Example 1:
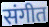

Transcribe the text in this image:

संगीत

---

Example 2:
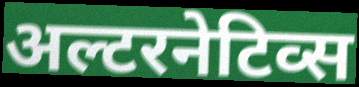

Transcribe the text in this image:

अल्टरनेटिव्स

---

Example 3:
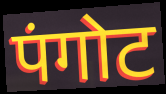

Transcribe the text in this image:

पंगोट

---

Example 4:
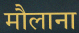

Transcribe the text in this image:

मौलाना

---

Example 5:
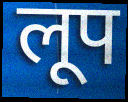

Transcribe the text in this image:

लूप